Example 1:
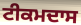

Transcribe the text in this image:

ਟੀਕਮਦਾਸ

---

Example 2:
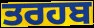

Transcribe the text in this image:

ਤਰਹਬ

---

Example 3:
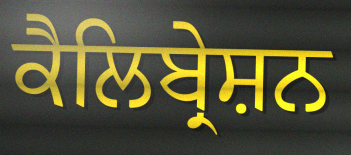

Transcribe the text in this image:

ਕੈਲਿਬ੍ਰੇਸ਼ਨ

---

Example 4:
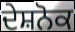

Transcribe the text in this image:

ਦੇਸ਼ਨੋਕ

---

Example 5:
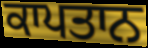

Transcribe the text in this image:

ਕਾਪਤਾਨ